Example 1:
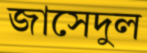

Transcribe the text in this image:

জাসেদুল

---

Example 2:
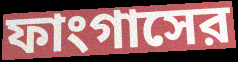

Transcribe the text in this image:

ফাংগাসের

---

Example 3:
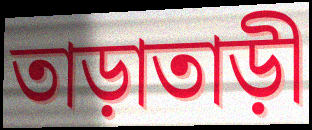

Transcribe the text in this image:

তাড়াতাড়ী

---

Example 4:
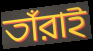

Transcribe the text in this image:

তাঁরাই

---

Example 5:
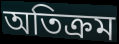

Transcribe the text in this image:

অতিক্রম